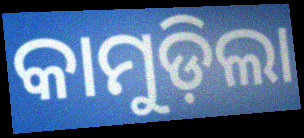
କାମୁଡ଼ିଲା